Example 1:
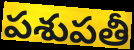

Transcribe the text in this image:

పశుపతీ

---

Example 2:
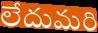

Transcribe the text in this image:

లేదుమరి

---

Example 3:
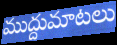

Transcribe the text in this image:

ముద్దుమాటలు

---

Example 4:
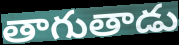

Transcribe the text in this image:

తాగుతాడు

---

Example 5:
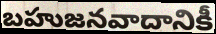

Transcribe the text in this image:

బహుజనవాదానికీ